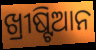
ଖ୍ରୀଷ୍ଟିଆନ